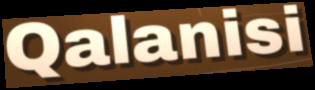
Qalanisi